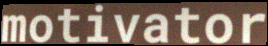
motivator